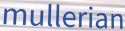
mullerian